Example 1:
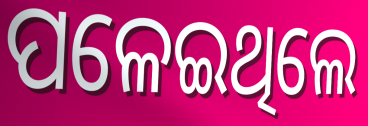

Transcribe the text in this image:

ପଳେଇଥିଲେ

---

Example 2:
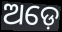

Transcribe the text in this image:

ଅଡ଼େ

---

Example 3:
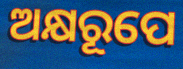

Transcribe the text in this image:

ଅକ୍ଷରୂପେ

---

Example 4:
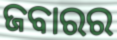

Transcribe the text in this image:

ଜବାରର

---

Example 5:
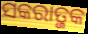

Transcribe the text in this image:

ସକରାତ୍ଜକ